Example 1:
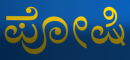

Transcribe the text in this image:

ಪೋಷಿ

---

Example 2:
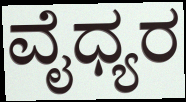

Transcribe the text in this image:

ವೈಧ್ಯರ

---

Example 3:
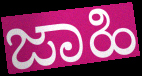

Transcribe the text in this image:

ಜಾಹಿ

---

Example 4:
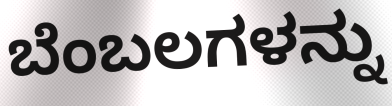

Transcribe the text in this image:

ಬೆಂಬಲಗಳನ್ನು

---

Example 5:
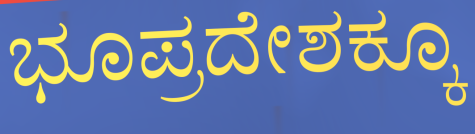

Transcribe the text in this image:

ಭೂಪ್ರದೇಶಕ್ಕೂ